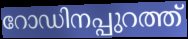
റോഡിനപ്പുറത്ത്